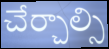
చేర్చాల్సి